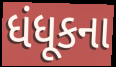
ધંધૂકના